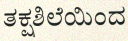
ತಕ್ಷಶಿಲೆಯಿಂದ